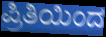
ಪ್ರಿತಿಯಿಂದ